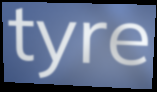
tyre